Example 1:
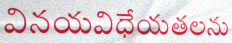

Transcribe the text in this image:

వినయవిధేయతలను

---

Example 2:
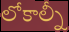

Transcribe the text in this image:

లోకాల్నీ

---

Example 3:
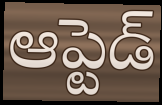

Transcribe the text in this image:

ఆప్టెడ్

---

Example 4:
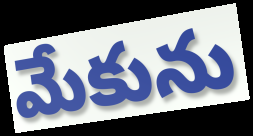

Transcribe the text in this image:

మేకును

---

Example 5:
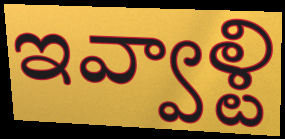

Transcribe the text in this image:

ఇవ్వాళ్టి